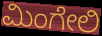
ಮಿಂಗೇಲಿ